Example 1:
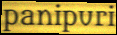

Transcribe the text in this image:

panipuri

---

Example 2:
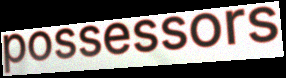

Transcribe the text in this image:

possessors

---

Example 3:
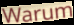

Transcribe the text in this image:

Warum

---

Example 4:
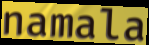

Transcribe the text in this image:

namala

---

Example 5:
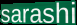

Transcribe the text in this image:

sarashi